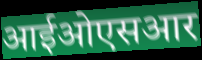
आईओएसआर